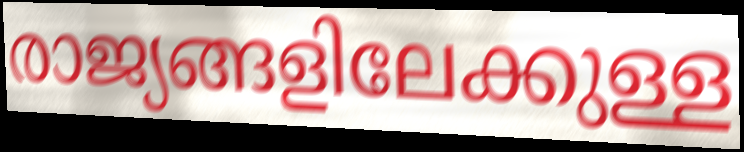
രാജ്യങ്ങളിലേക്കുള്ള